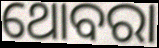
ଥୋବରା